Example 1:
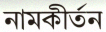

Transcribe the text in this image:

নামকীর্তন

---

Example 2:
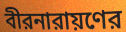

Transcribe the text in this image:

বীরনারায়ণের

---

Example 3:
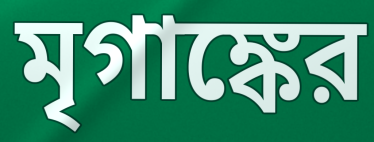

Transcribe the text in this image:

মৃগাঙ্কের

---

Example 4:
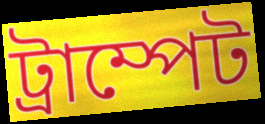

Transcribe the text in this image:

ট্রাম্পেট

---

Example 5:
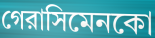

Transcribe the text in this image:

গেরাসিমেনকো